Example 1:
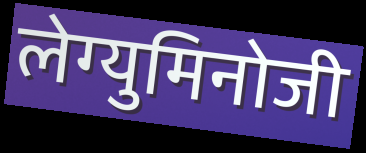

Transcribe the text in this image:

लेग्युमिनोजी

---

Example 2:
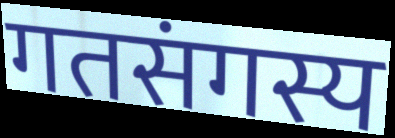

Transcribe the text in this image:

गतसंगस्य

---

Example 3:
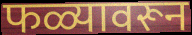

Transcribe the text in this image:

फळ्यावरून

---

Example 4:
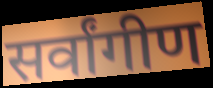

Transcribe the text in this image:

सर्वांगीण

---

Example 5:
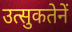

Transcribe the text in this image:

उत्सुकतेनें